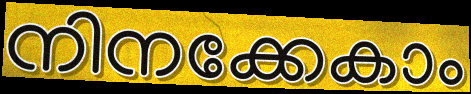
നിനക്കേകാം